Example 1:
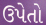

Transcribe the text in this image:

ઉપેતો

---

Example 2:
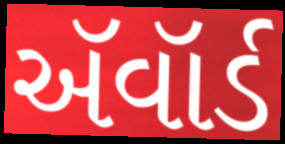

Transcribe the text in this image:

ઍવૉર્ડ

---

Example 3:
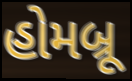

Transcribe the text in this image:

હોમબ્રૂ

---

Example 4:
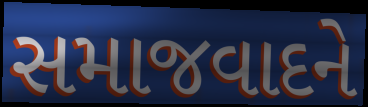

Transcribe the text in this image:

સમાજવાદને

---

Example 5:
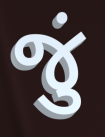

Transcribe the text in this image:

જું